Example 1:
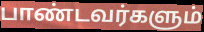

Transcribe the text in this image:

பாண்டவர்களும்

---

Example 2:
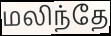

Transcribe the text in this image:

மலிந்தே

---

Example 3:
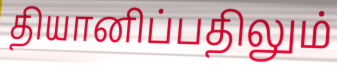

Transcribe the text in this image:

தியானிப்பதிலும்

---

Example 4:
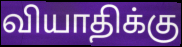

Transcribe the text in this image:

வியாதிக்கு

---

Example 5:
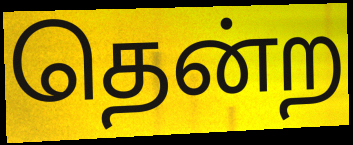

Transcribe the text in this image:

தென்ற